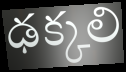
ఢక్కలి